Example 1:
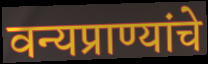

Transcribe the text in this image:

वन्यप्राण्यांचे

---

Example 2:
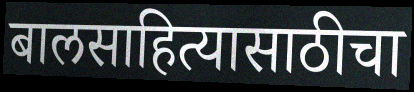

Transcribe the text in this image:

बालसाहित्यासाठीचा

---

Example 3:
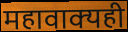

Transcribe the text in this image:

महावाक्यही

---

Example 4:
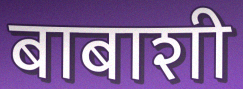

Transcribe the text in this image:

बाबाशी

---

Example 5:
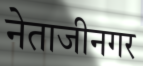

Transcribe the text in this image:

नेताजीनगर